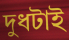
দুধটাই